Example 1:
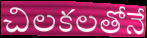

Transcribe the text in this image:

చిలకలతోనే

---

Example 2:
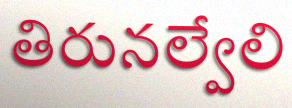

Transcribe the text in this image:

తిరునల్వేలి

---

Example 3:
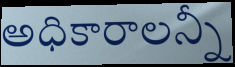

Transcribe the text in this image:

అధికారాలన్నీ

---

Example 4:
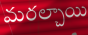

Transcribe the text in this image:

మరల్చాయి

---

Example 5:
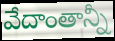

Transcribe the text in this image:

వేదాంతాన్నీ